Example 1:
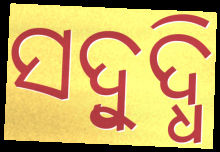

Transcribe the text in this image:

ସଦ୍ବୁଦ୍ଧି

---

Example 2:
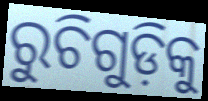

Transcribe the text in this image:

ରୁଚିଗୁଡ଼ିକୁ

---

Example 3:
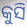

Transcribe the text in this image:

କୁସି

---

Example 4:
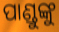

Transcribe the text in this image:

ପାଣ୍ଡୁଙ୍କୁ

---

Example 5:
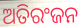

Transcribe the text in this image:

ଅତିରଂଜନ